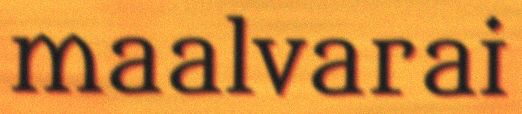
maalvarai